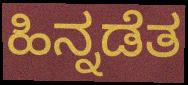
ಹಿನ್ನಡೆತ